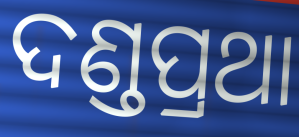
ଦଣ୍ଡପ୍ରଥା